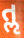
તૢ